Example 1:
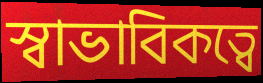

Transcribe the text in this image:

স্বাভাবিকত্বে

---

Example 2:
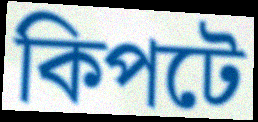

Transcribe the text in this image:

কিপটে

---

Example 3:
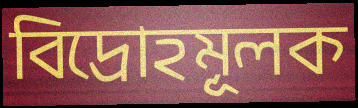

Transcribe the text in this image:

বিদ্রোহমূলক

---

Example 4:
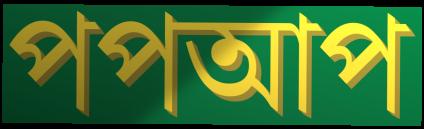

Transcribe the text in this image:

পপআপ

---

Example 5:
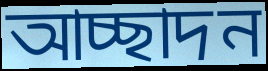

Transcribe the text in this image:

আচ্ছাদন